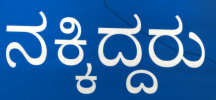
ನಕ್ಕಿದ್ದರು